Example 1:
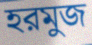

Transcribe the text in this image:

হরমুজ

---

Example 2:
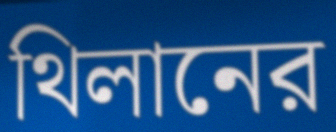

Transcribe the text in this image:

থিলানের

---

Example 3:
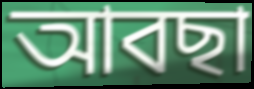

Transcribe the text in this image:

আবছা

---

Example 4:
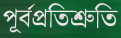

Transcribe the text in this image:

পূর্বপ্রতিশ্রুতি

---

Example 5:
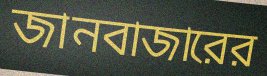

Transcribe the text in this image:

জানবাজারের